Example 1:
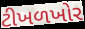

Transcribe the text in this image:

ટીખળખોર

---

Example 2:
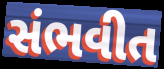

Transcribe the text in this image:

સંભવીત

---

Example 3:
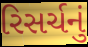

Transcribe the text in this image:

રિસર્ચનું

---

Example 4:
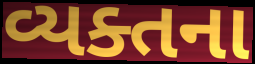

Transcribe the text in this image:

વ્યક્તના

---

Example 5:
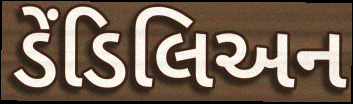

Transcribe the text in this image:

ડેંડિલિઅન